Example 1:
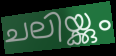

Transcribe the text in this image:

ചലിയ്ക്കും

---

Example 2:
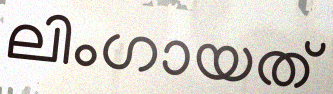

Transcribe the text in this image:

ലിംഗായത്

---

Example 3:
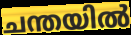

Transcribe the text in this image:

ചന്തയിൽ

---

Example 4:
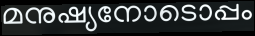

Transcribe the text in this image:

മനുഷ്യനോടൊപ്പം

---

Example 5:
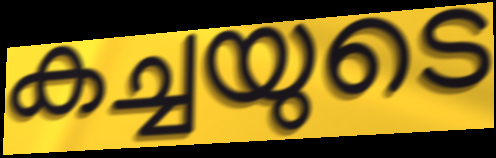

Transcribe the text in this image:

കച്ചയുടെ